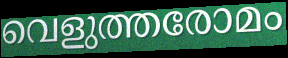
വെളുത്തരോമം